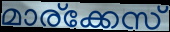
മാര്ക്കേസ്